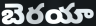
బెరయా